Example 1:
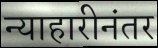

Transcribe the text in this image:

न्याहारीनंतर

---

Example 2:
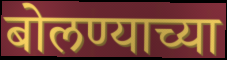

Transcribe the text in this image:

बोलण्याच्या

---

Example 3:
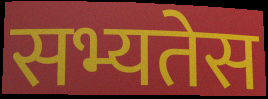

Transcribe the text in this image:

सभ्यतेस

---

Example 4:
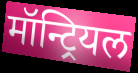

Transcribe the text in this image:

मॉन्ट्रियल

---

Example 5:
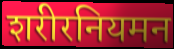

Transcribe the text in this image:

शरीरनियमन